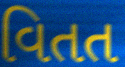
વિતત